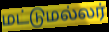
மட்டுமல்லர்